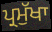
ਪ੍ਰਮੁੱਖਾ